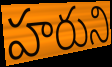
హరుని